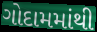
ગોદામમાંથી